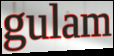
gulam